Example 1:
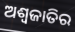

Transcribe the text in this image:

ଅଶ୍ୱଜାତିର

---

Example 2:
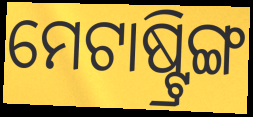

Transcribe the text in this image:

ମେଟାଷ୍ଟ୍ରିଙ୍ଗ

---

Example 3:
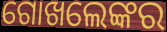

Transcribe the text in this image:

ଗୋଖଲେଙ୍କର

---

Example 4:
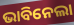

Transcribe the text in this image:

ଭାବିନେଲା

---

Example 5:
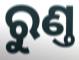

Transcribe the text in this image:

ରୁଣ୍ତ